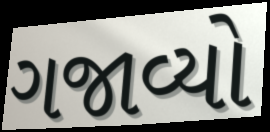
ગજાવ્યો